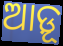
ଆଡ଼ୂ